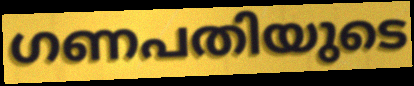
ഗണപതിയുടെ